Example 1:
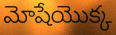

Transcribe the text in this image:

మోషేయొక్క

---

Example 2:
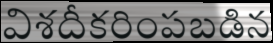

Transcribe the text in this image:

విశదీకరింపబడిన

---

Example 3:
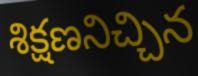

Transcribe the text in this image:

శిక్షణనిచ్చిన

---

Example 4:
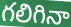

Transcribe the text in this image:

గలిగినా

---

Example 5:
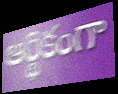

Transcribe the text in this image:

ఆర్థికంగా